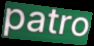
patro